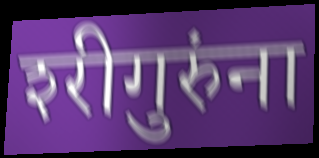
श्रीगुरुंना